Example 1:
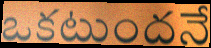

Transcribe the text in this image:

ఒకటుందనే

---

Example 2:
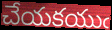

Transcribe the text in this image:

చేయకయుఁ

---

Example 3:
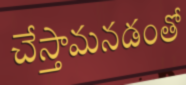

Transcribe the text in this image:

చేస్తామనడంతో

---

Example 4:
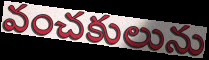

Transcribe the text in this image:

వంచకులును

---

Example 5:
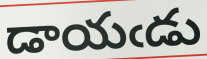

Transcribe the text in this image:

డాయఁడు